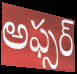
అఫ్సర్